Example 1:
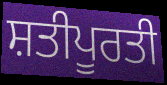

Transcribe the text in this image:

ਸ਼ਤੀਪੂਰਤੀ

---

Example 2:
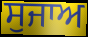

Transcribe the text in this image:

ਸੁਜਾਅ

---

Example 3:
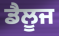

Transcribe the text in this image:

ਡੈਲੂਜ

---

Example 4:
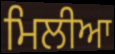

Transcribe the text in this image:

ਮਿਲੀਆ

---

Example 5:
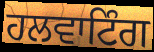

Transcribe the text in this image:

ਹਲਵਾਟਿੰਗ